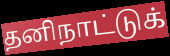
தனிநாட்டுக்